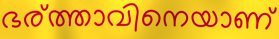
ഭര്ത്താവിനെയാണ്